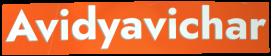
Avidyavichar